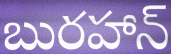
బురహాన్